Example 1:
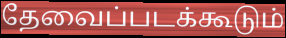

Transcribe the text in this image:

தேவைப்படக்கூடும்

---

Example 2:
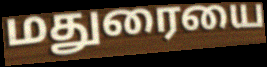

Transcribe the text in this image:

மதுரையை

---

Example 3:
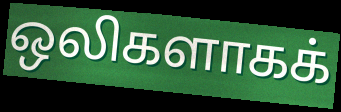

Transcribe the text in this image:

ஒலிகளாகக்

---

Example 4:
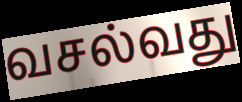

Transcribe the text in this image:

வசல்வது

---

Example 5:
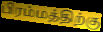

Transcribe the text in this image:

பிரம்மத்திற்கு